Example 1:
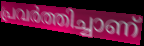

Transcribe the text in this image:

പ്രവർത്തിച്ചാണ്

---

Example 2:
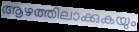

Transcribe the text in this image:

ആഴത്തിലാക്കുകയും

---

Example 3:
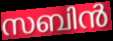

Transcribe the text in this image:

സബിൻ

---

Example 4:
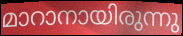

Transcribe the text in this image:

മാറാനായിരുന്നു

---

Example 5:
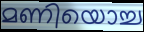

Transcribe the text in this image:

മണിയൊച്ച